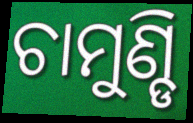
ଚାମୁଣ୍ଡି